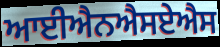
ਆਈਐਨਐਸਏਐਸ